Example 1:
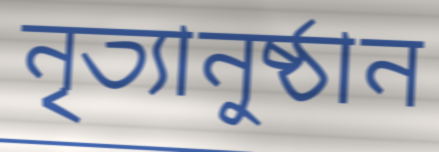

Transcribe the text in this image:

নৃত্যানুষ্ঠান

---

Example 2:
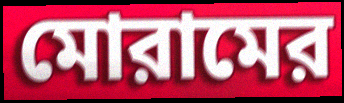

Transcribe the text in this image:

মোরামের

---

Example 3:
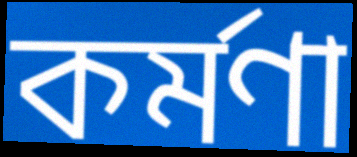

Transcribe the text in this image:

কর্মণা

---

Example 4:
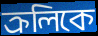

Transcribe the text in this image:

ক্রলিকে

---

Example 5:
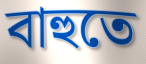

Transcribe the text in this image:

বাহুতে